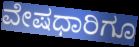
ವೇಷಧಾರಿಗೂ